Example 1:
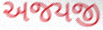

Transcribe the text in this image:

અજયજી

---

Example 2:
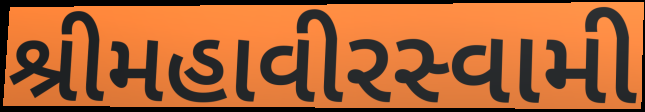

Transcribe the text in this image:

શ્રીમહાવીરસ્વામી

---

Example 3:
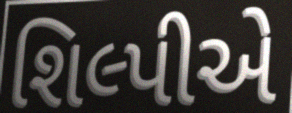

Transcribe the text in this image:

શિલ્પીએ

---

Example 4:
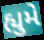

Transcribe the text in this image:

હ્યુમે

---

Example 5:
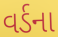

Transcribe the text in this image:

વર્ડના